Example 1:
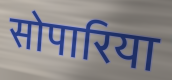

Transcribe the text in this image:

सोपारिया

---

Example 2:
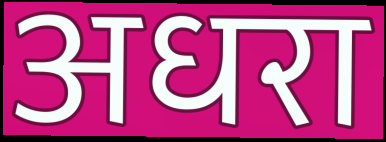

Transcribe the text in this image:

अधरा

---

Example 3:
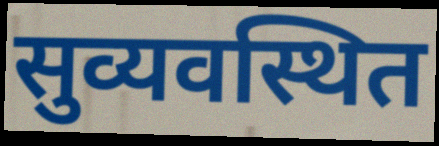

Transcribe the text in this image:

सुव्यवस्थित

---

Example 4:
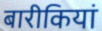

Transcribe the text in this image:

बारीकियां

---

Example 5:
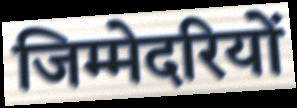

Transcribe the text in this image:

जिम्मेदरियों